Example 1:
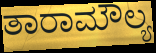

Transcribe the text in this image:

ತಾರಾಮೌಲ್ಯ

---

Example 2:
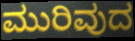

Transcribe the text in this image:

ಮುರಿವುದ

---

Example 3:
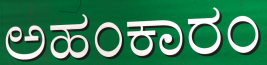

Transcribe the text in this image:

ಅಹಂಕಾರಂ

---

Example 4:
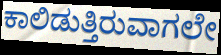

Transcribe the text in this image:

ಕಾಲಿಡುತ್ತಿರುವಾಗಲೇ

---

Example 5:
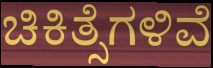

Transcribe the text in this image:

ಚಿಕಿತ್ಸೆಗಳಿವೆ